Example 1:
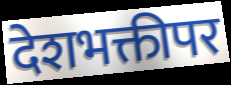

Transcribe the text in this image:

देशभक्तीपर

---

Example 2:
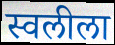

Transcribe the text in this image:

स्वलीला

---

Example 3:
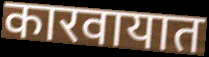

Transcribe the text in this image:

कारवायात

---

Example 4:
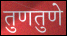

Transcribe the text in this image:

तुणतुणे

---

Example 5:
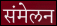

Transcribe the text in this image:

संमेलन